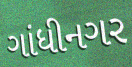
ગાંધીનગર